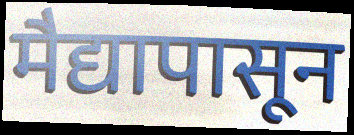
मैद्यापासून